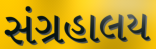
સંગ્રહાલય